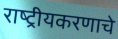
राष्ट्रीयकरणाचे